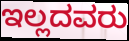
ಇಲ್ಲದವರು